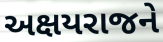
અક્ષયરાજને